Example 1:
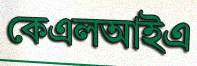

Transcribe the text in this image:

কেএলআইএ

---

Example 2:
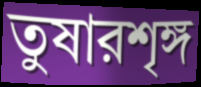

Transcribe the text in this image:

তুষারশৃঙ্গ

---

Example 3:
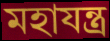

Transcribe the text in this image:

মহাযন্ত্র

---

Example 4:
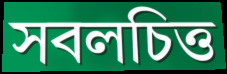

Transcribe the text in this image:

সবলচিত্ত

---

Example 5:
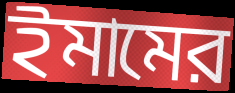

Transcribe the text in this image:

ইমামের